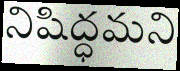
నిషిద్ధమని